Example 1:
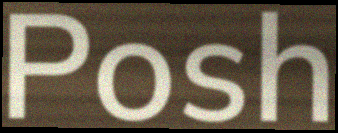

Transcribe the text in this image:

Posh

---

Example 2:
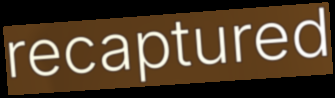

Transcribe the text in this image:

recaptured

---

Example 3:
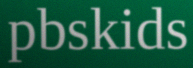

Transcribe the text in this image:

pbskids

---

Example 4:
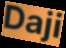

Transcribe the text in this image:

Daji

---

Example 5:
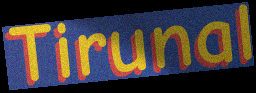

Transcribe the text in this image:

Tirunal